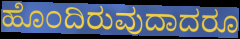
ಹೊಂದಿರುವುದಾದರೂ